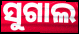
ସୁଗାଲ